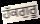
ਹੱਕਗੁਰੂ